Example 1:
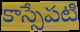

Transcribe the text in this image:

కాస్సేపటి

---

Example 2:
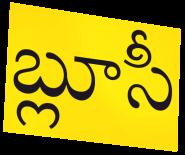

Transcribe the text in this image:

బ్లూసీ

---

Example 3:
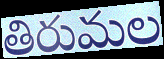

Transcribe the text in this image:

తిరుమల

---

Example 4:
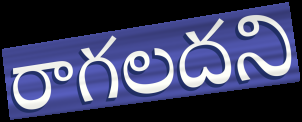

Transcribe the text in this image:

రాగలదని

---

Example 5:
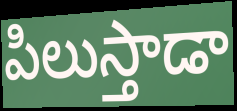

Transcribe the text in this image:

పిలుస్తాడా